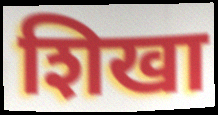
शिखा